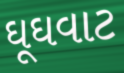
ઘૂઘવાટ